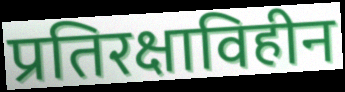
प्रतिरक्षाविहीन